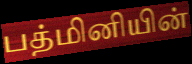
பத்மினியின்